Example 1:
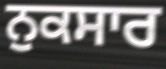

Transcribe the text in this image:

ਨੁਕਸਾਰ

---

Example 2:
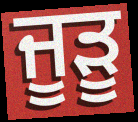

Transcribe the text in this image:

ਜੂੜੂ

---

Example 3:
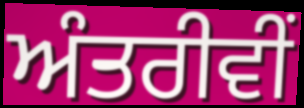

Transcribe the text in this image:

ਅੰਤਰੀਵੀਂ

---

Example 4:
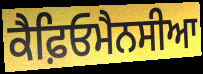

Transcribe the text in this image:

ਕੈਫ਼ਿਓਮੈਨਸੀਆ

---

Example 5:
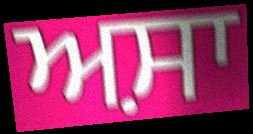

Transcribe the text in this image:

ਅ਼ਸਾ